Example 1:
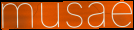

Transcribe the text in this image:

musae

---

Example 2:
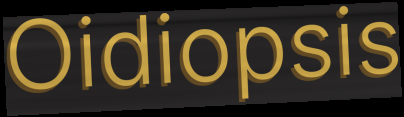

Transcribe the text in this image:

Oidiopsis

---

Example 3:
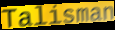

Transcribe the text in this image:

Talisman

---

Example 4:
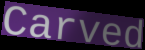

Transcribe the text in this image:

Carved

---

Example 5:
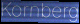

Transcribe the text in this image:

Kornberg